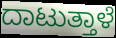
ದಾಟುತ್ತಾಳೆ